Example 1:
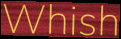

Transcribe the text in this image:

Whish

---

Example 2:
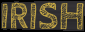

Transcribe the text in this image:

IRISH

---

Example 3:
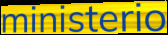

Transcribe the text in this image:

ministerio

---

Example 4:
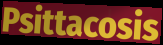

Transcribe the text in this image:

Psittacosis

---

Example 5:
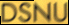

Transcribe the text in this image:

DSNU